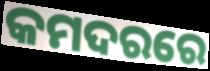
କମଦରରେ